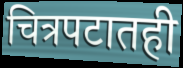
चित्रपटातही